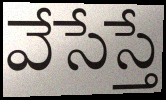
వేసేస్తే